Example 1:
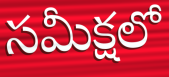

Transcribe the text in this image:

సమీక్షలో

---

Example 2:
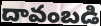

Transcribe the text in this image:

దావంబడి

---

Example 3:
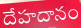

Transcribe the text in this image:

దేహదానం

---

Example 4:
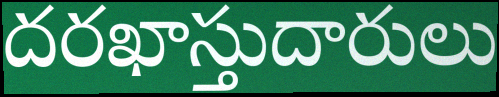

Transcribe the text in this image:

దరఖాస్తుదారులు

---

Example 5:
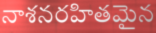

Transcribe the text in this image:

నాశనరహితమైన